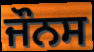
ਜੌਨਸ